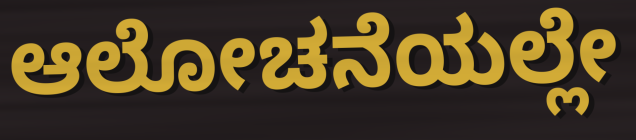
ಆಲೋಚನೆಯಲ್ಲೇ